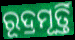
ରୂଦ୍ରମୂର୍ତ୍ତି